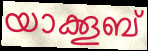
യാക്കൂബ്